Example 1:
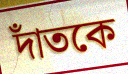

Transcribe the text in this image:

দাঁতকে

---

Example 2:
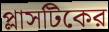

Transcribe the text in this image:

প্লাসটিকের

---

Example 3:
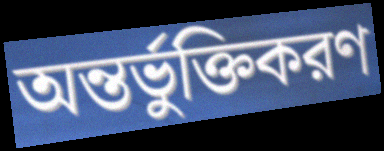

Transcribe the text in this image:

অন্তর্ভুক্তিকরণ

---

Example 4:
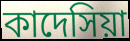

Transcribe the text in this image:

কাদেসিয়া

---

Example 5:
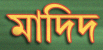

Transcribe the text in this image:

মাদিদ